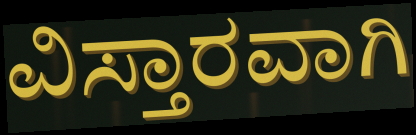
ವಿಸ್ತಾರವಾಗಿ